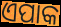
ଏପାକ